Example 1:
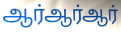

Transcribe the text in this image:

ஆர்ஆர்ஆர்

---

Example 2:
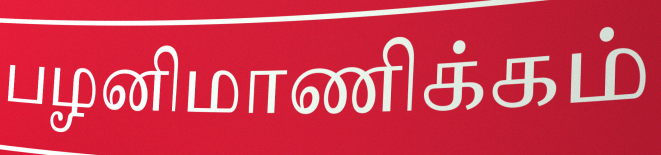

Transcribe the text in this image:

பழனிமாணிக்கம்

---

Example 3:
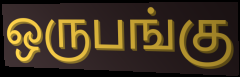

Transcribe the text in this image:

ஒருபங்கு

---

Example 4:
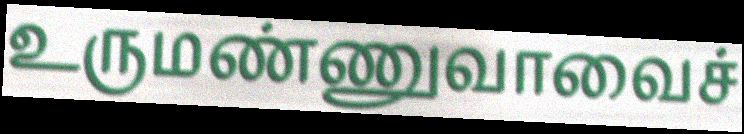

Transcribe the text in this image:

உருமண்ணுவாவைச்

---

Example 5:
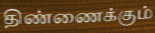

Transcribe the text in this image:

திண்ணைக்கும்